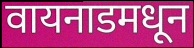
वायनाडमधून